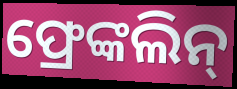
ଫ୍ରେଙ୍କଲିନ୍